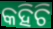
କହିଚି